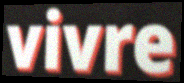
vivre